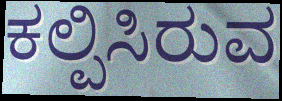
ಕಲ್ಪಿಸಿರುವ